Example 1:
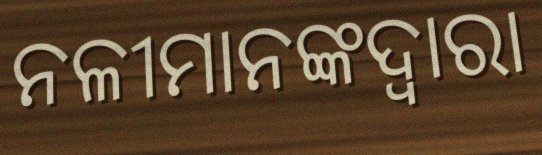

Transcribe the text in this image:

ନଳୀମାନଙ୍କଦ୍ୱାରା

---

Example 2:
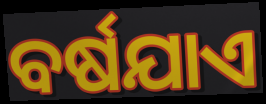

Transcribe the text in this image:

ବର୍ଷଯାଏ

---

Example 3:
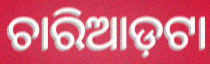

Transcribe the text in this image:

ଚାରିଆଡ଼ଟା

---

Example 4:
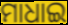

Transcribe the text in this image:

ମାଧାଇ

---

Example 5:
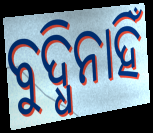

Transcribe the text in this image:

ବୁଦ୍ଧିନାହିଁ